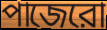
পাজেরো